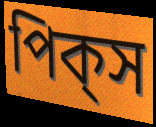
পিক্‌স